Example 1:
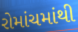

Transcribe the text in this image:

રોમાંચમાંથી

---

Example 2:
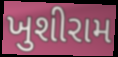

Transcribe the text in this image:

ખુશીરામ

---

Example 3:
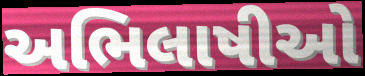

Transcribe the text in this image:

અભિલાષીઓ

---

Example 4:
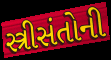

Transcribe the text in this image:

સ્ત્રીસંતોની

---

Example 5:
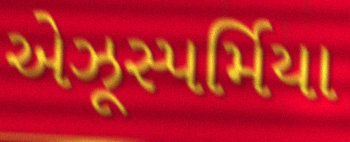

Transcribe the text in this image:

એઝૂસ્પર્મિયા